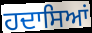
ਹਦਾਸਿਆਂ